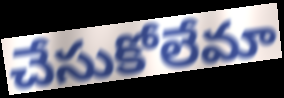
చేసుకోలేమా